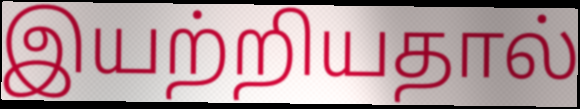
இயற்றியதால்